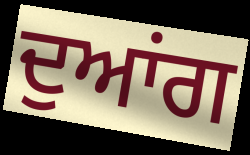
ਦੁਆਂਗ